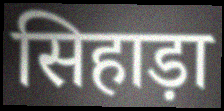
सिहाड़ा